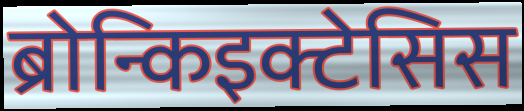
ब्रोन्किइक्टेसिस